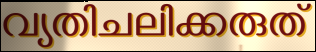
വ്യതിചലിക്കരുത്